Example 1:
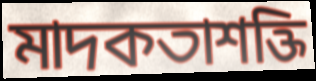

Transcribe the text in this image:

মাদকতাশক্তি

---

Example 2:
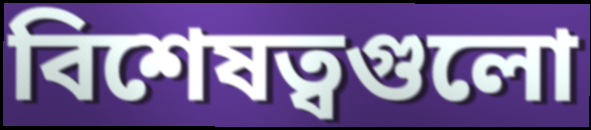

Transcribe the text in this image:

বিশেষত্বগুলো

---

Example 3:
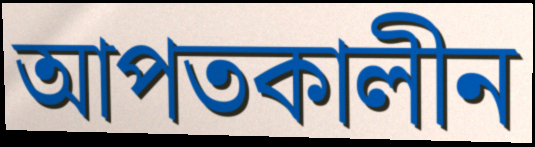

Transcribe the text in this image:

আপতকালীন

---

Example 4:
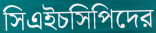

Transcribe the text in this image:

সিএইচসিপিদের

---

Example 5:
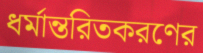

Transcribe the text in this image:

ধর্মান্তরিতকরণের